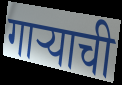
गाऱ्याची